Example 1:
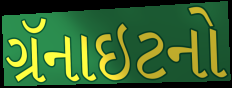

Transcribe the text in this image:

ગ્રૅનાઇટનો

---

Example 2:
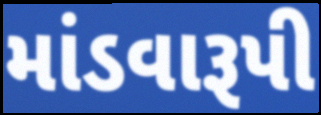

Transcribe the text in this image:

માંડવારૂપી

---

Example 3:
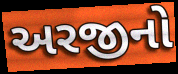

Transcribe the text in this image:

અરજીનો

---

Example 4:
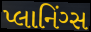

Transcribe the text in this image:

પ્લાનિંગ્સ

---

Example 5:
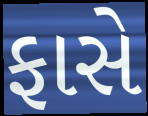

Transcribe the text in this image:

ફાસે